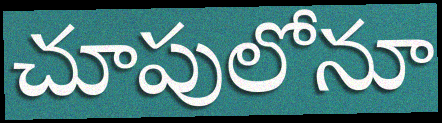
చూపులోనూ